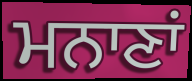
ਮਨਾਣਾਂ